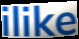
ilike